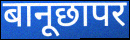
बानूछापर